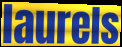
laurels